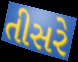
તીસરે